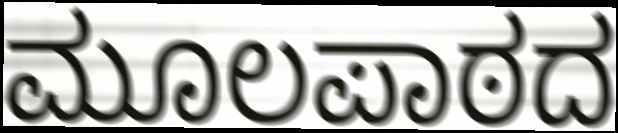
ಮೂಲಪಾಠದ